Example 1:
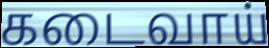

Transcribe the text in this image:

கடைவாய்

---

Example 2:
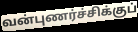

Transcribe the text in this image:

வன்புணர்ச்சிக்குப்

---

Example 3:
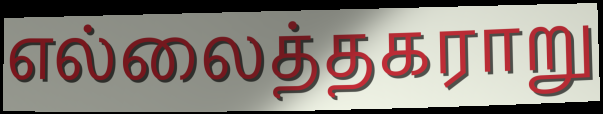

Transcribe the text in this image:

எல்லைத்தகராறு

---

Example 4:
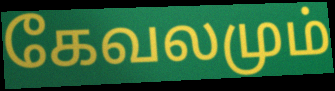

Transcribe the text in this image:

கேவலமும்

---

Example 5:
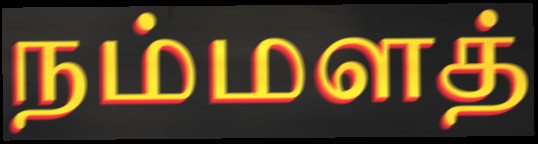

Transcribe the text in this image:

நம்மளத்